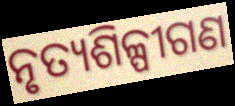
ନୃତ୍ୟଶିଳ୍ପୀଗଣ